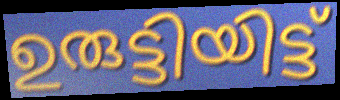
ഉരുട്ടിയിട്ട്